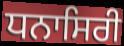
ਧਨਾਸਿਰੀ